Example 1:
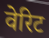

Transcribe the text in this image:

वेरिट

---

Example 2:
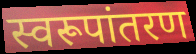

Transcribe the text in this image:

स्वरूपांतरण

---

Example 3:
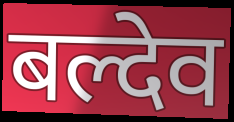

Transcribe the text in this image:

बल्देव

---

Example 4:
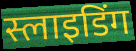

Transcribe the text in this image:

स्लाइडिंग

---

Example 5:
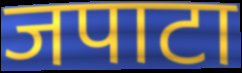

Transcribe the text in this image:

जपाटा